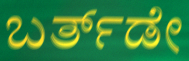
ಬರ್ತ್‌ಡೇ